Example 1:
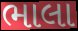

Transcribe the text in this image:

ભાલા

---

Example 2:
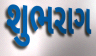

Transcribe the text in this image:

શુભરાગ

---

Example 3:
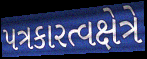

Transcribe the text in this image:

પત્રકારત્વક્ષેત્રે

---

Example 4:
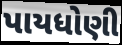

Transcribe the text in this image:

પાયધોણી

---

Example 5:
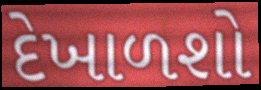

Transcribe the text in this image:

દેખાળશો